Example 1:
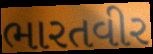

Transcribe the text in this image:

ભારતવીર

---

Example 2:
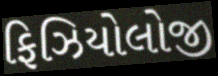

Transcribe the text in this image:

ફિઝિયોલોજી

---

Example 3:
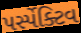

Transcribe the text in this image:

પર્સ્પેક્ટિવ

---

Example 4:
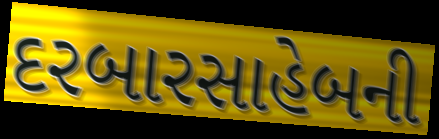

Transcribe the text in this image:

દરબારસાહેબની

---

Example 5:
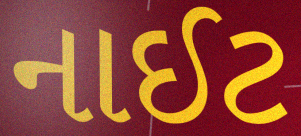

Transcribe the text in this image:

નાઈટ